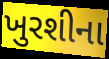
ખુરશીના